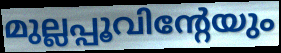
മുല്ലപ്പൂവിന്റേയും